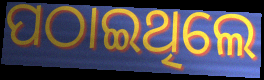
ପଠାଇଥିଲେ